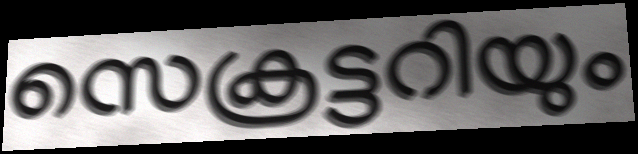
സെക്രട്ടറിയും